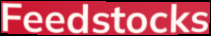
Feedstocks